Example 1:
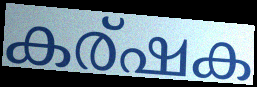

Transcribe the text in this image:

കര്ഷക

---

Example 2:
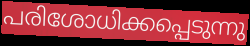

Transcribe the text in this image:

പരിശോധിക്കപ്പെടുന്നു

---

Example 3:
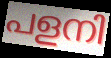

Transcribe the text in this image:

പളനി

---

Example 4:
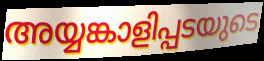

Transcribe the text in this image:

അയ്യങ്കാളിപ്പടയുടെ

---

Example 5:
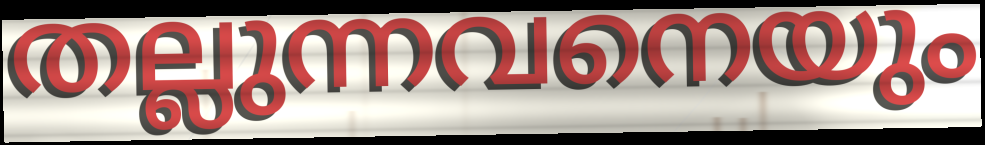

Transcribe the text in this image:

തല്ലുന്നവനെയും